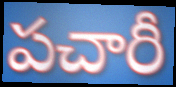
పచారీ